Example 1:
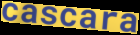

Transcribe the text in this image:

cascara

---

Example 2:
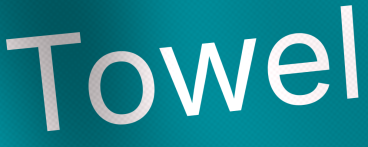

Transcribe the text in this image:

Towel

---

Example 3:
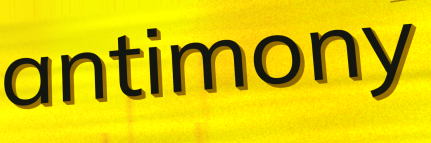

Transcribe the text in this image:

antimony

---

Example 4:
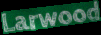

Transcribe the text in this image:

Larwood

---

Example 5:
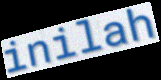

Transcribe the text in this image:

inilah